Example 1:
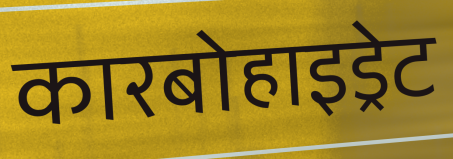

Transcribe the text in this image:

कारबोहाइड्रेट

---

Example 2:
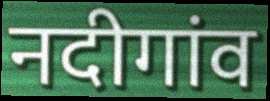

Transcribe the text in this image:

नदीगांव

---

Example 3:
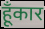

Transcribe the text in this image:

हूँकार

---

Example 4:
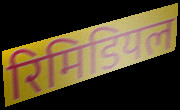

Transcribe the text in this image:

रिमिडियल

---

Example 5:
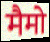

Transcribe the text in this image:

मैमो